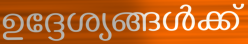
ഉദ്ദേശ്യങ്ങൾക്ക്